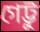
গেট্টু